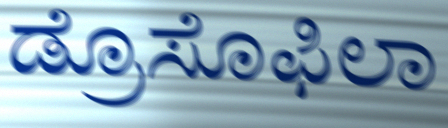
ಡ್ರೊಸೊಫಿಲಾ